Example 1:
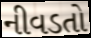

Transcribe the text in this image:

નીવડતો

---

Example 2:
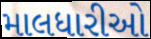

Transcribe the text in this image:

માલધારીઓ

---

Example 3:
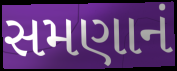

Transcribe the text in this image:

સમણાનં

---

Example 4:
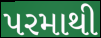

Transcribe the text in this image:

પરમાથી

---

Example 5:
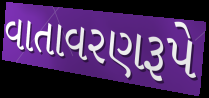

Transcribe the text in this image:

વાતાવરણરૂપે